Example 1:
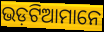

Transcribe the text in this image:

ଭଡ଼ଟିଆମାନେ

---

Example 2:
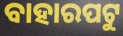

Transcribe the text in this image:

ବାହାରପଟୁ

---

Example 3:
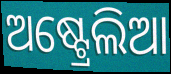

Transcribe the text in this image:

ଅଷ୍ଟ୍ରେଲିଆ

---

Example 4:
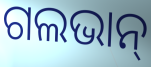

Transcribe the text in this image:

ଗଲଭାନ୍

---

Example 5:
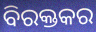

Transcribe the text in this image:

ବିରକ୍ତକର